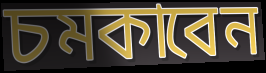
চমকাবেন